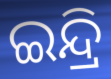
ଇନ୍ଦ୍ରି